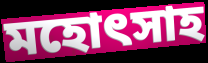
মহোৎসাহ